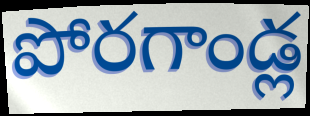
పోరగాండ్ల